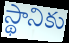
స్థానికు